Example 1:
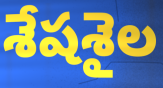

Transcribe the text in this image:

శేషశైల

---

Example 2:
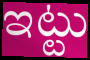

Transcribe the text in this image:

ఇట్టు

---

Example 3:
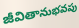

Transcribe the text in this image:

జీవితానుభవపు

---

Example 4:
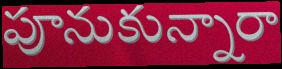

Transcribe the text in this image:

పూనుకున్నారా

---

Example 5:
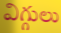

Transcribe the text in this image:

విగ్గులు